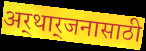
अर्थार्जनासाठी